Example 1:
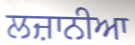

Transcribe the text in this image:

ਲਜ਼ਾਨੀਆ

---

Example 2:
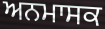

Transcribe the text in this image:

ਅਨਮਾਸਕ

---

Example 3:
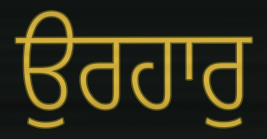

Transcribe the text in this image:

ਉਰਹਾਰੁ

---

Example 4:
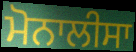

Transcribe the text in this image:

ਮੋਨਾਲੀਸਾ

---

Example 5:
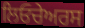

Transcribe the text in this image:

ਲਿਓਚੇਅਰਸ